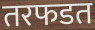
तरफडत